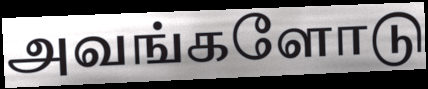
அவங்களோடு